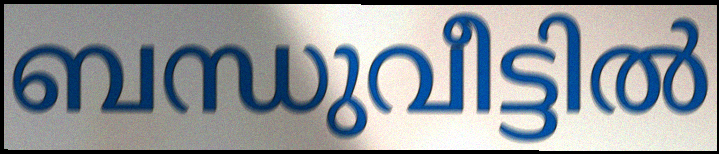
ബന്ധുവീട്ടിൽ